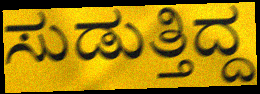
ಸುಡುತ್ತಿದ್ದ